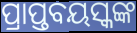
ପ୍ରାପ୍ତବୟସ୍କଙ୍କ